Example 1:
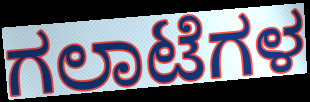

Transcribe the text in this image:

ಗಲಾಟೆಗಳ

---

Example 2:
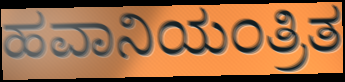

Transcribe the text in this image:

ಹವಾನಿಯಂತ್ರಿತ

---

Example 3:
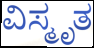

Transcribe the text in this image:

ವಿಸ್ಮೃತ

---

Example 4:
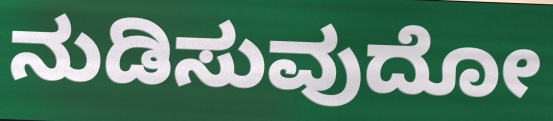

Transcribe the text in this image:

ನುಡಿಸುವುದೋ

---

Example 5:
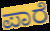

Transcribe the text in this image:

ಪಾರೆ